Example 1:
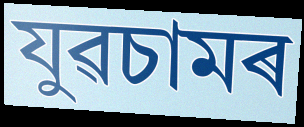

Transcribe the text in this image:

যুৱচামৰ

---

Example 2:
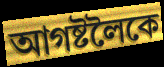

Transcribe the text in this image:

আগষ্টলৈকে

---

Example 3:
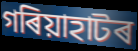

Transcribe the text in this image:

গৰিয়াহাটৰ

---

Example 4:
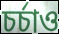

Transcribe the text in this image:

চৰ্চাও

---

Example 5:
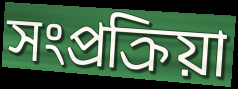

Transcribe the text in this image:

সংপ্ৰক্ৰিয়া